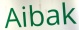
Aibak